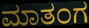
ಮಾತಂಗ